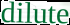
dilute